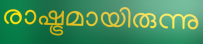
രാഷ്ട്രമായിരുന്നു